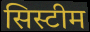
सिस्टीम